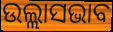
ଉଲ୍ଲାସଭାବ